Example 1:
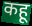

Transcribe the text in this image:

कहू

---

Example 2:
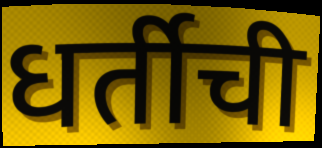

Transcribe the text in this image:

धर्तीची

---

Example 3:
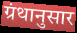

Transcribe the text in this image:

ग्रंथानुसार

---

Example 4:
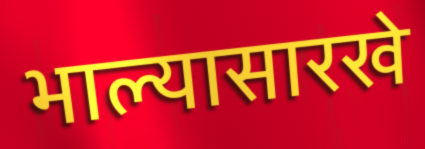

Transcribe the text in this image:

भाल्यासारखे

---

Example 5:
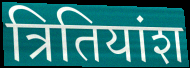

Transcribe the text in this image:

त्रितियांश